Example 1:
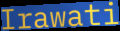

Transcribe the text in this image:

Irawati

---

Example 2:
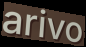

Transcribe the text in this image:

arivo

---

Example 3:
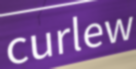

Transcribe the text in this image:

curlew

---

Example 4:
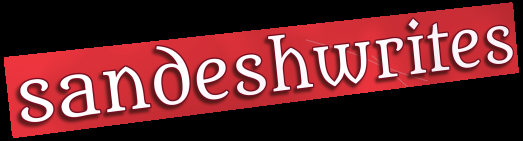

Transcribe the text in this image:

sandeshwrites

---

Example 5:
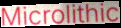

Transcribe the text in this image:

Microlithic